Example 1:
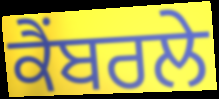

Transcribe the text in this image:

ਕੈਂਬਰਲੇ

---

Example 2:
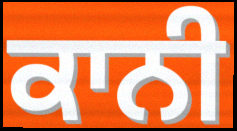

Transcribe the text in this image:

ਕਾਨੀ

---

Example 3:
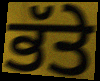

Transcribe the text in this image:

ਭੱਤੇ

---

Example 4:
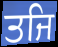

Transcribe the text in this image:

ਤਜਿ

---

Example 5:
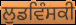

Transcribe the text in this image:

ਲੁਡਵਿੰਸਕੀ